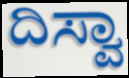
ದಿಸ್ವಾ